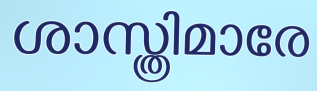
ശാസ്ത്രിമാരേ